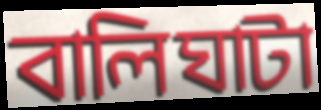
বালিঘাটা